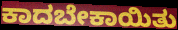
ಕಾದಬೇಕಾಯಿತು